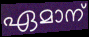
ഏമാന്